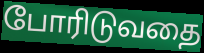
போரிடுவதை